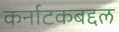
कर्नाटकबद्दल